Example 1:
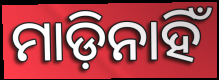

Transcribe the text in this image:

ମାଡ଼ିନାହିଁ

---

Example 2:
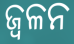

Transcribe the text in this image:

ଜ୍ଵଳନ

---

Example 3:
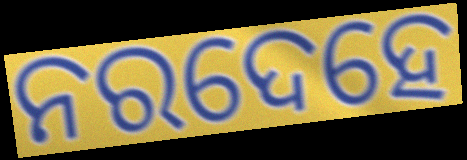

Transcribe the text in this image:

ନରଦେହେ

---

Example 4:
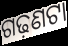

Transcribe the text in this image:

ଗଢ଼ଣଟା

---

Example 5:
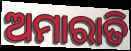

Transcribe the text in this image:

ଅମାରାତି